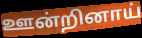
ஊன்றினாய்